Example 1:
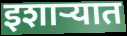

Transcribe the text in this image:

इशाऱ्यात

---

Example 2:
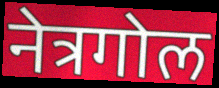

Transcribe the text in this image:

नेत्रगोल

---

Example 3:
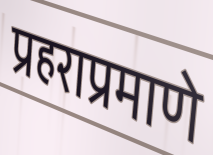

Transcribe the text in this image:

प्रहराप्रमाणे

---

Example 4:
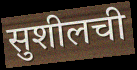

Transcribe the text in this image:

सुशीलची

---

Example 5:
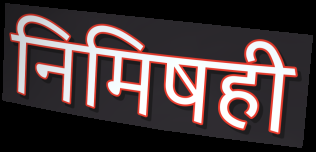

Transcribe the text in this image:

निमिषही